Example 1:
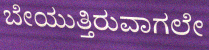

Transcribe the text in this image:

ಬೇಯುತ್ತಿರುವಾಗಲೇ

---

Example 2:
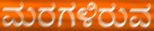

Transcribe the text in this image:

ಮರಗಳಿರುವ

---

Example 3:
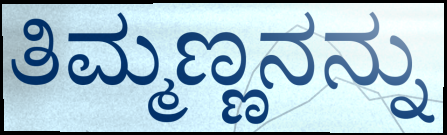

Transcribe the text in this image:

ತಿಮ್ಮಣ್ಣನನ್ನು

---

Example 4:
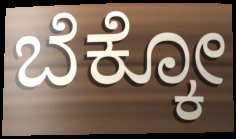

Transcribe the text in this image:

ಬೆಕ್ಕೋ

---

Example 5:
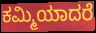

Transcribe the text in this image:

ಕಮ್ಮಿಯಾದರೆ